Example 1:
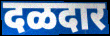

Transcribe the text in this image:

दळदार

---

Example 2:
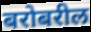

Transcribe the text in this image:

बरोबरील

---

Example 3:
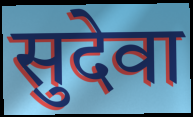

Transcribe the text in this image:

सुदेवा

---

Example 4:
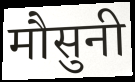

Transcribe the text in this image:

मौसुनी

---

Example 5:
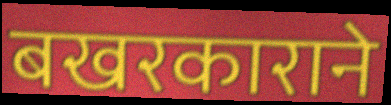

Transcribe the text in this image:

बखरकाराने